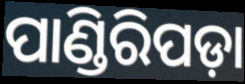
ପାଣ୍ଡିରିପଡ଼ା